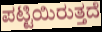
ಪಟ್ಟಿಯಿರುತ್ತದೆ